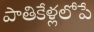
పాతికేళ్లలోపే